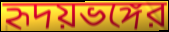
হৃদয়ভঙ্গের